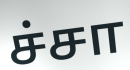
ச்சா